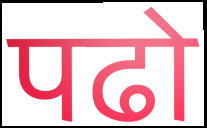
पढो